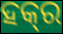
ହକ୍‌ର